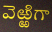
వెఱ్ఱిగా